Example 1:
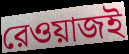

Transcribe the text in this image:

রেওয়াজই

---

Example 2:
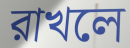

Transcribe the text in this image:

রাখলে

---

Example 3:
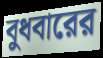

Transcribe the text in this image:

বুধবারের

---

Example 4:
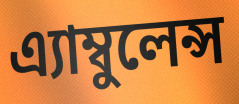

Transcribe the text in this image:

এ্যাম্বুলেন্স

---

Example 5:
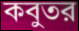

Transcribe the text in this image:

কবুতর